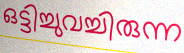
ഒട്ടിച്ചുവച്ചിരുന്ന